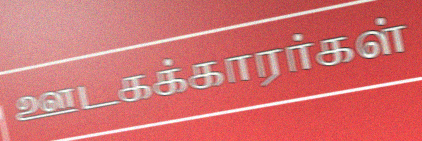
ஊடகக்காரர்கள்